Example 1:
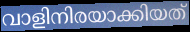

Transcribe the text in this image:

വാളിനിരയാക്കിയത്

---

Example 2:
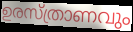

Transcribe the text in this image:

ഉരസ്ത്രാണവും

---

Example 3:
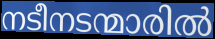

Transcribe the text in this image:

നടീനടന്മാരിൽ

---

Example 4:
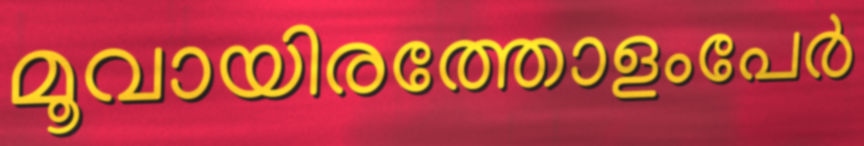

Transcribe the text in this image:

മൂവായിരത്തോളംപേർ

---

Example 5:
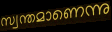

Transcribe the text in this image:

സ്വന്തമാണെന്നു